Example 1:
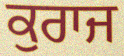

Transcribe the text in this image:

ਕੁਰਾਜ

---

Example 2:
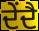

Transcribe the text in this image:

ਦੇਂਦੈ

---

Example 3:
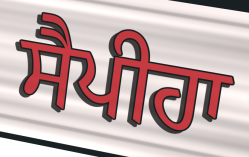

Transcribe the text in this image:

ਸੈਪੀਹਾ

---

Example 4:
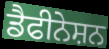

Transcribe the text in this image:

ਡੈਫੀਨੇਸ਼ਨ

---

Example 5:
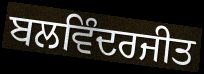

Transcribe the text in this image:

ਬਲਵਿੰਦਰਜੀਤ